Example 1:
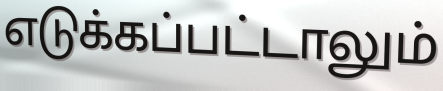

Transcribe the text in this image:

எடுக்கப்பட்டாலும்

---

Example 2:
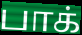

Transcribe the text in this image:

பாக்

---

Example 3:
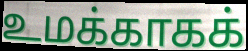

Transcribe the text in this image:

உமக்காகக்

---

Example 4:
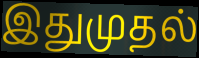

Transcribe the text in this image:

இதுமுதல்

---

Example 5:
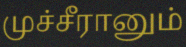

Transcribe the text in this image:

முச்சீரானும்